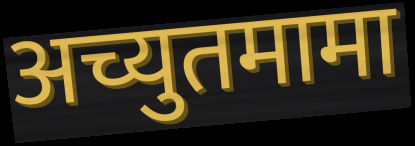
अच्युतमामा